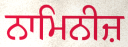
ਨਾਮਿਨੀਜ਼